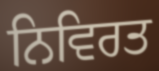
ਨਿਵਿਰਤ